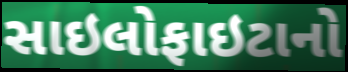
સાઇલોફાઇટાનો